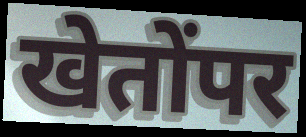
खेतोंपर